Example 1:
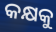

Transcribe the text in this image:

କକ୍ଷକୁ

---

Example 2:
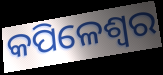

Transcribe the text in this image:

କପିଳେଶ୍ଵର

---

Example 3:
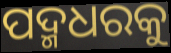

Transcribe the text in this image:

ପଦ୍ମଧରକୁ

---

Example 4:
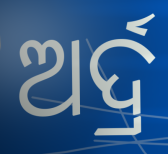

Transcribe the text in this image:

ଅର୍ଦ୍ର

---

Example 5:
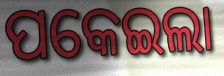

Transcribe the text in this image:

ପକେଇଲା